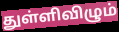
துள்ளிவிழும்